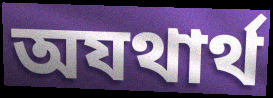
অযথার্থ